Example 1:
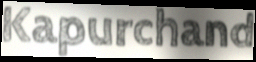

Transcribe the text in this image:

Kapurchand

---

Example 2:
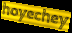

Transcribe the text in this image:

hoyechey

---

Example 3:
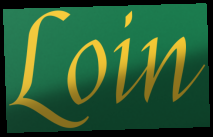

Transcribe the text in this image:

Loin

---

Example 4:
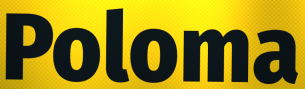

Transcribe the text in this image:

Poloma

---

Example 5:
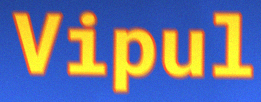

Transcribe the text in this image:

Vipul